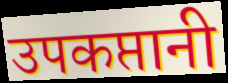
उपकप्तानी